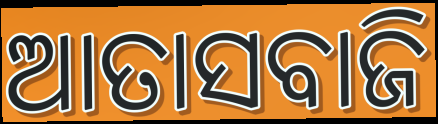
ଆତାସବାଜି